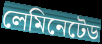
লেমিনেটেড